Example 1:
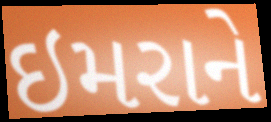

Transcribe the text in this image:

ઇમરાને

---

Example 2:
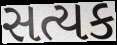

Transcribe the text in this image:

સત્યક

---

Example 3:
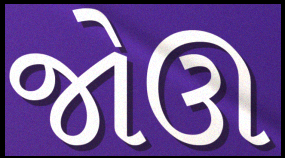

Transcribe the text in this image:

જોઊ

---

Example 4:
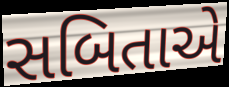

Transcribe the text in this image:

સબિતાએ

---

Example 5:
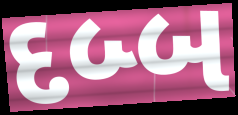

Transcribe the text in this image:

દબ્બ